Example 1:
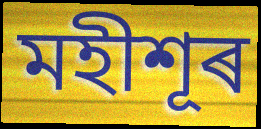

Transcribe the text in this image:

মহীশূৰ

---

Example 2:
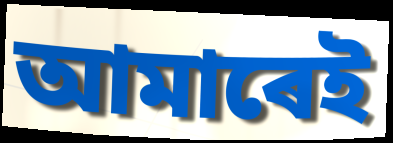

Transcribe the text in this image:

আমাৰেই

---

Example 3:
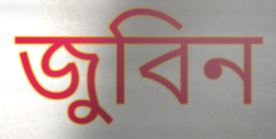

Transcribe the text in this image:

জুবিন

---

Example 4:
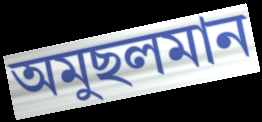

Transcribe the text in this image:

অমুছলমান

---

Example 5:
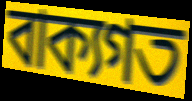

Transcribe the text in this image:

বাক্যগত